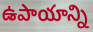
ఉపాయాన్ని